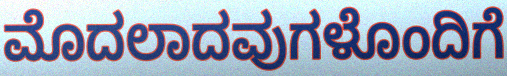
ಮೊದಲಾದವುಗಳೊಂದಿಗೆ